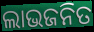
ଲାଭଜନିତ